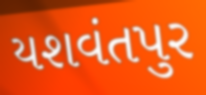
યશવંતપુર